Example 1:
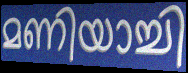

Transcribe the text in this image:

മണിയാച്ചി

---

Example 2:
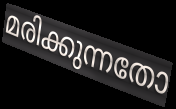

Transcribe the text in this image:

മരിക്കുന്നതോ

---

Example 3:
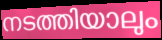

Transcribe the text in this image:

നടത്തിയാലും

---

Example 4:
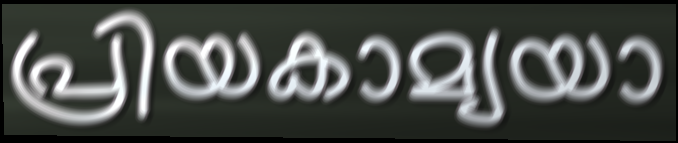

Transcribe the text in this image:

പ്രിയകാമ്യയാ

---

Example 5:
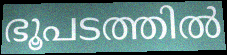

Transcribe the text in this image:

ഭൂപടത്തിൽ